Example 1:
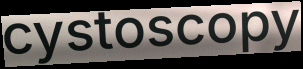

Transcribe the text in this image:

cystoscopy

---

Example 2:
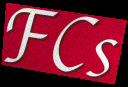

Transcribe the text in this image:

FCs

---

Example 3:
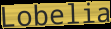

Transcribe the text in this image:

Lobelia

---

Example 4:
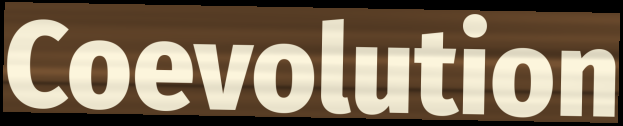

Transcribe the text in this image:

Coevolution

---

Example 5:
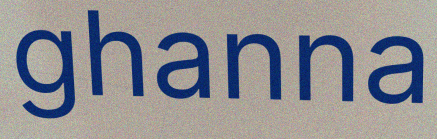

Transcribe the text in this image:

ghanna